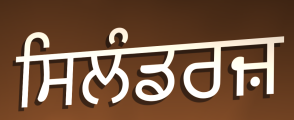
ਸਿਲੰਡਰਜ਼